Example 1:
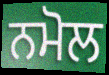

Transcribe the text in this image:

ਨਮੋਲ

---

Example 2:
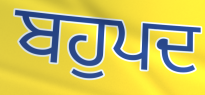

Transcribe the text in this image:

ਬਹੁਪਦ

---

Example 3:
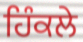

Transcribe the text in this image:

ਹਿੰਕਲੇ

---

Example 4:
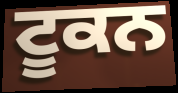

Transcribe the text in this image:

ਟੂਕਨ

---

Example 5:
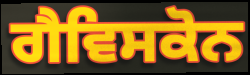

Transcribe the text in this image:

ਗੈਵਿਸਕੋਨ